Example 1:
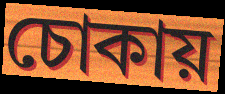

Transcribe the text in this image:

চোকায়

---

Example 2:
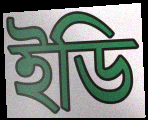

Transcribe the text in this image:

ইডি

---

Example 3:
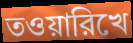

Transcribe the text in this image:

তওয়ারিখে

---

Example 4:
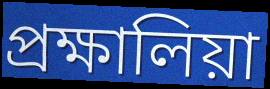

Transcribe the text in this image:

প্রক্ষালিয়া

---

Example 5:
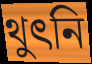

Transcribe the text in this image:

থুৎনি